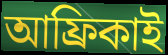
আফ্ৰিকাই